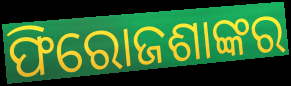
ଫିରୋଜଶାଙ୍କର